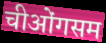
चीओंगसम